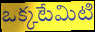
ఒక్కటేమిటి